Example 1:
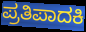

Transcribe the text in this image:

ಪ್ರತಿಪಾದಕಿ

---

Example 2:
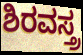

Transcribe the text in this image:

ಶಿರವಸ್ತ್ರ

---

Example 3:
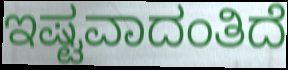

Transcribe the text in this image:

ಇಷ್ಟವಾದಂತಿದೆ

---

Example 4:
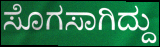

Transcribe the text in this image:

ಸೊಗಸಾಗಿದ್ದು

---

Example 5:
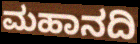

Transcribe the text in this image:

ಮಹಾನದಿ